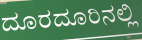
ದೂರದೂರಿನಲ್ಲಿ